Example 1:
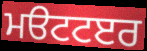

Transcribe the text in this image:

ਮੳਟਟੲਰ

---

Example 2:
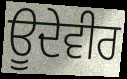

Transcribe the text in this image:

ਊਦੇਵੀਰ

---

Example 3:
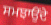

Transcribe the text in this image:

ਸਮਝਾਉੰਦੇ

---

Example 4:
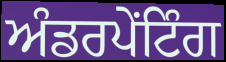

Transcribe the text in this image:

ਅੰਡਰਪੇਂਟਿੰਗ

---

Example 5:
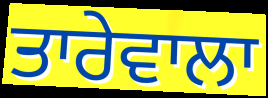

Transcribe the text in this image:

ਤਾਰੇਵਾਲਾ